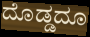
ದೊಡ್ಡದೂ